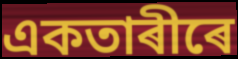
একতাৰীৰে